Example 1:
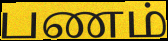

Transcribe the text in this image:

பணம்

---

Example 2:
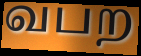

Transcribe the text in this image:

வபற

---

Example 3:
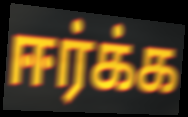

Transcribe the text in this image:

ஈர்க்க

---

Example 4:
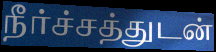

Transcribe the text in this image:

நீர்ச்சத்துடன்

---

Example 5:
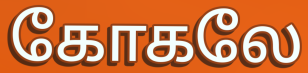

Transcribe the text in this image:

கோகலே